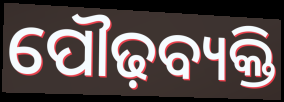
ପୌଢ଼ବ୍ୟକ୍ତି